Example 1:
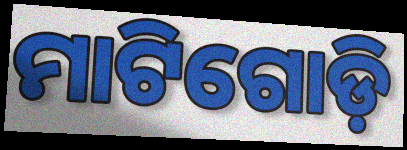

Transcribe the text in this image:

ମାଟିଗୋଡ଼ି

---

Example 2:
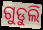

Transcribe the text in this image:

ଗୁଡୁଲି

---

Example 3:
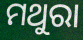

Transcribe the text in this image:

ମଥୁରା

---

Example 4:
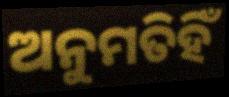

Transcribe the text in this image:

ଅନୁମତିହିଁ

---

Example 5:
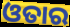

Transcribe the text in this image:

ଓତାର